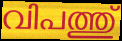
വിപത്തു്